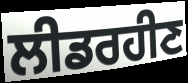
ਲੀਡਰਹੀਣ